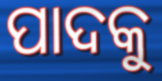
ପାଦକୁ